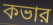
কভার